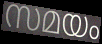
സമയം